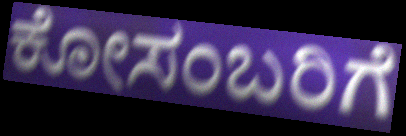
ಕೋಸಂಬರಿಗೆ